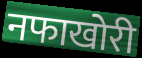
नफाखोरी